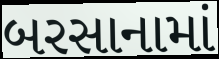
બરસાનામાં